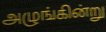
அழுங்கின்று